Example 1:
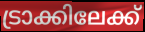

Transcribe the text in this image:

ട്രാക്കിലേക്ക്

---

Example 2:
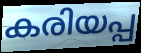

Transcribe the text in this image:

കരിയപ്പ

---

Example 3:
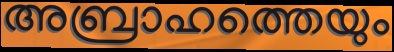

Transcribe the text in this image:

അബ്രാഹത്തെയും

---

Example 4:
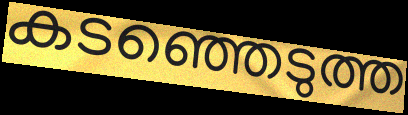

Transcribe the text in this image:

കടഞ്ഞെടുത്ത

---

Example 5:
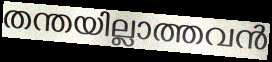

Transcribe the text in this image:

തന്തയില്ലാത്തവൻ